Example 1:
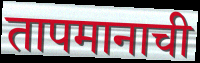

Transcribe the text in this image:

तापमानाची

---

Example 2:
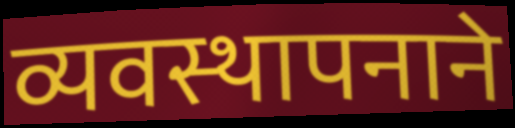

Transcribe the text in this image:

व्यवस्थापनाने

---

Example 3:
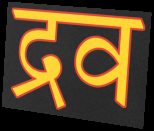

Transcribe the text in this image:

द्रव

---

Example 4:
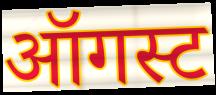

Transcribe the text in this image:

ऑगस्ट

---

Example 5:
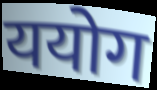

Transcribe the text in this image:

ययोग